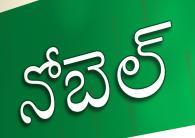
నోబెల్